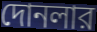
দোনলার